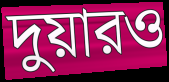
দুয়ারও